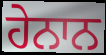
ਹੇਨਾਨ